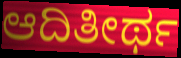
ಆದಿತೀರ್ಥ